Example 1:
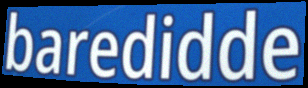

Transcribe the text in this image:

baredidde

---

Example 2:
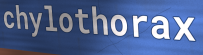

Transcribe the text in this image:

chylothorax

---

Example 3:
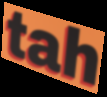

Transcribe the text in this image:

tah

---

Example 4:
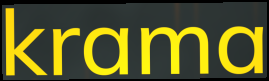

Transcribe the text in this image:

krama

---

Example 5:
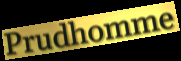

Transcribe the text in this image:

Prudhomme